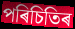
পৰিচিতিৰ